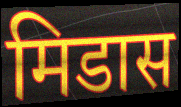
मिडास